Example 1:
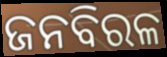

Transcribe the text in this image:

ଜନବିରଳ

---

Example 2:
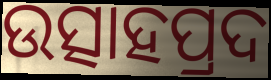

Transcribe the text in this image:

ଉତ୍ସାହପ୍ରଦ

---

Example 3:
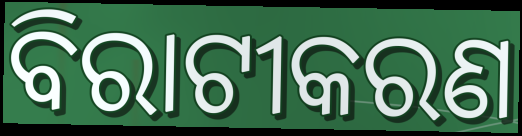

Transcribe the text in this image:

ବିରାଟୀକରଣ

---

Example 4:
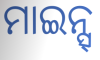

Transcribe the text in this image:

ମାଇନ୍ସ୍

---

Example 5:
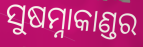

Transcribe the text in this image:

ସୁଷମ୍ନାକାଣ୍ଡର